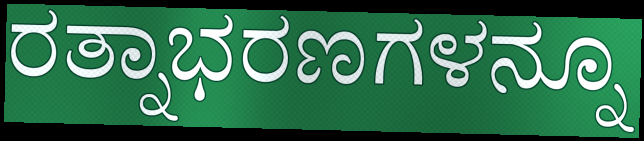
ರತ್ನಾಭರಣಗಳನ್ನೂ